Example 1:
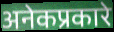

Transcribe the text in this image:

अनेकप्रकारे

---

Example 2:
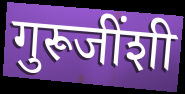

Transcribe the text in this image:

गुरूजींशी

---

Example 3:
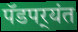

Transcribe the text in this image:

पॅडपर्यंत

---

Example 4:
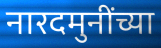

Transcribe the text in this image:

नारदमुनींच्या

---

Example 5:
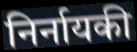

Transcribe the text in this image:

निर्नायकी